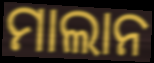
ମାଲାନ